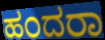
ಹಂದರಾ